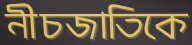
নীচজাতিকে